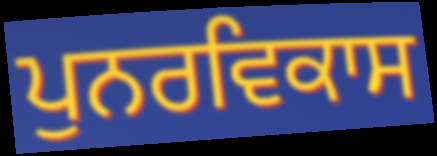
ਪੁਨਰਵਿਕਾਸ